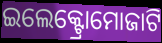
ଇଲେକ୍ଟ୍ରୋମୋଜାଟି